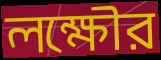
লক্ষৌর